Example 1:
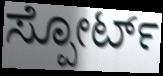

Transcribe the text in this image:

ಸ್ಪೋರ್ಟ್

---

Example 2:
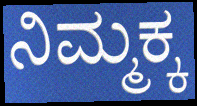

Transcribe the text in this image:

ನಿಮ್ಮಕ್ಕ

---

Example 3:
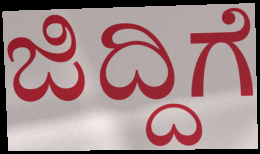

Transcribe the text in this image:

ಜಿದ್ದಿಗೆ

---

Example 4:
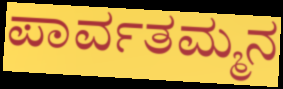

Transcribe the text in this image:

ಪಾರ್ವತಮ್ಮನ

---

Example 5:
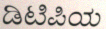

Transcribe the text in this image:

ಡಿಟಿಪಿಯ